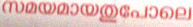
സമയമായതുപോലെ